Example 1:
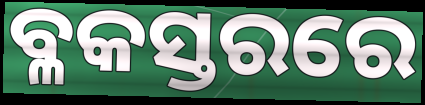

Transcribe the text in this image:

ବ୍ଳକସ୍ତରରେ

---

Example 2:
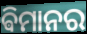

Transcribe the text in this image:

ଵିମାନର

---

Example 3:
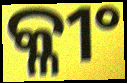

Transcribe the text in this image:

କ୍ଳୀଂ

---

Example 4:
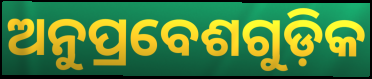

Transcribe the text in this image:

ଅନୁପ୍ରବେଶଗୁଡ଼ିକ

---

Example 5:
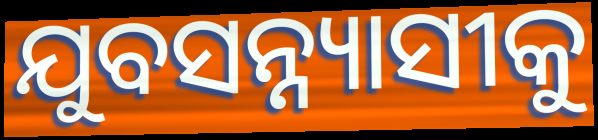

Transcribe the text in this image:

ଯୁବସନ୍ନ୍ୟାସୀକୁ